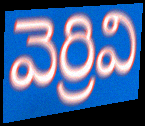
వెర్రివి